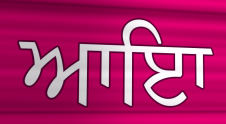
ਆਇਾ